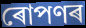
ৰোপণৰ